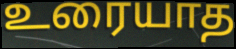
உரையாத